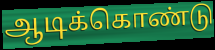
ஆடிக்கொண்டு